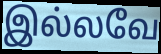
இல்லவே